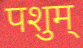
पशुम्